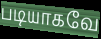
படியாகவே